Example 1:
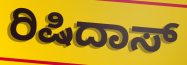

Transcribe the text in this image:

ರಿಷಿದಾಸ್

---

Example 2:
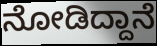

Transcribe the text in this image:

ನೋಡಿದ್ದಾನೆ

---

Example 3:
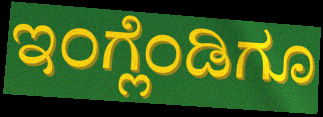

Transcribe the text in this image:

ಇಂಗ್ಲೆಂಡಿಗೂ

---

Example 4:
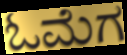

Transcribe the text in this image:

ಓಮೆಗ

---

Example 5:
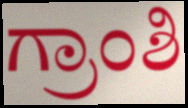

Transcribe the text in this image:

ಗ್ರಾಂಶಿ